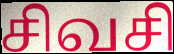
சிவசி